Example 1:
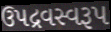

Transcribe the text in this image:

ઉપદ્રવસ્વરૂપ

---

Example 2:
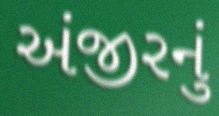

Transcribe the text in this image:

અંજીરનું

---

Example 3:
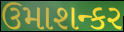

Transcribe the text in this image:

ઉમાશન્કર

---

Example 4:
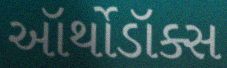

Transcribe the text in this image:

ઑર્થોડૉક્સ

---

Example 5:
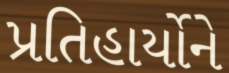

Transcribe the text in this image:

પ્રતિહાર્યોને